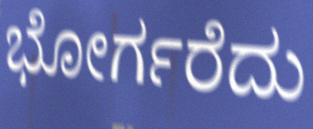
ಭೋರ್ಗರೆದು